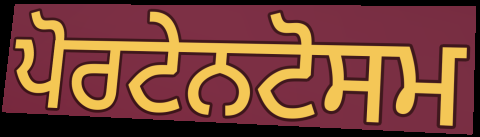
ਪੋਰਟੇਨਟੋਸਮ